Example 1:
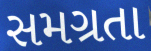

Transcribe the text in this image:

સમગ્રતા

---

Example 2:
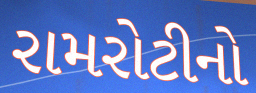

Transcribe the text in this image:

રામરોટીનો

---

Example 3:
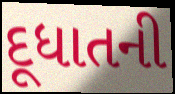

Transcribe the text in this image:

દૂધાતની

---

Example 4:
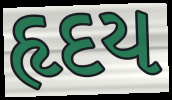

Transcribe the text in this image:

હૃદય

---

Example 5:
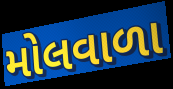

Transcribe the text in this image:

મોલવાળા